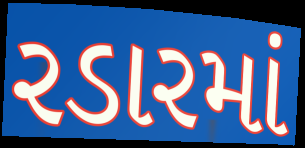
રડારમાં